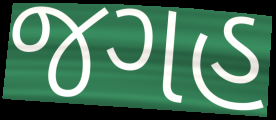
જગહ